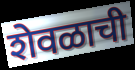
शेवळाची